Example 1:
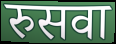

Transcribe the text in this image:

रुसवा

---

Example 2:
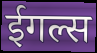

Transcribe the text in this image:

ईगल्स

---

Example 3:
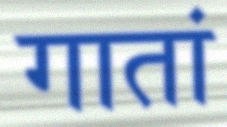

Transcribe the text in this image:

गातां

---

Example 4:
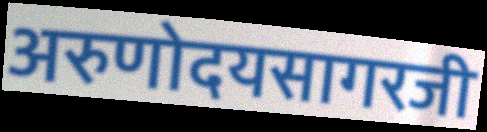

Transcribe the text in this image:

अरुणोदयसागरजी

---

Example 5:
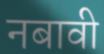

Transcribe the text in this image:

नबावी